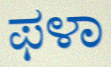
ಫಳಾ